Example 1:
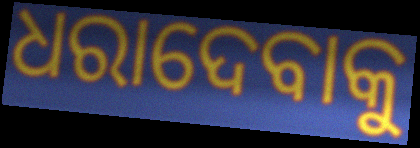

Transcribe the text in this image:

ଧରାଦେବାକୁ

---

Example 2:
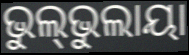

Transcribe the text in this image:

ଭୁଲ୍‌ଭୁଲାୟା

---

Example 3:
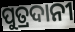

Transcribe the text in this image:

ପୁତ୍ରଦାନୀ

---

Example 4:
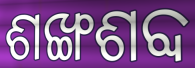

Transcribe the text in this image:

ଶଙ୍ଖଶବ୍ଦ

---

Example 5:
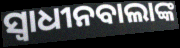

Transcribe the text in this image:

ସ୍ୱାଧୀନବାଲାଙ୍କ